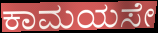
ಕಾಮಯಸೇ